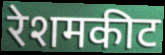
रेशमकीट